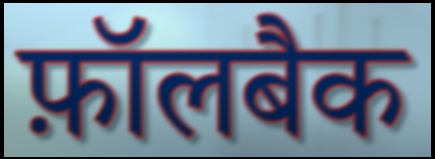
फ़ॉलबैक